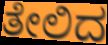
ತೇಲಿದ